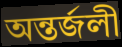
অন্তর্জলী